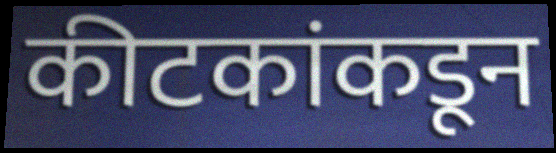
कीटकांकडून